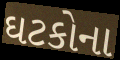
ઘટકોના